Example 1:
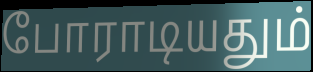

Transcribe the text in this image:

போராடியதும்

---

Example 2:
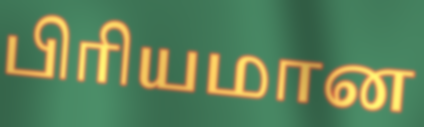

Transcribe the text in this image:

பிரியமான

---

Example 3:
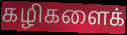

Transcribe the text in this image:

கழிகளைக்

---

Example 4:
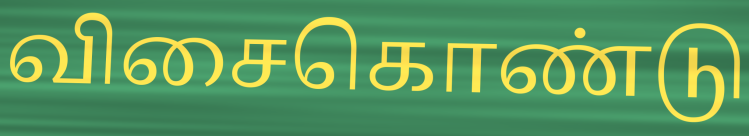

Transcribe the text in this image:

விசைகொண்டு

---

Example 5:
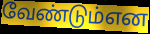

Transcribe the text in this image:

வேண்டும்என